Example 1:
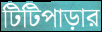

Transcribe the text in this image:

টিটিপাড়ার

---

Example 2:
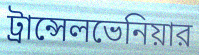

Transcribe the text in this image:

ট্রান্সেলভেনিয়ার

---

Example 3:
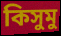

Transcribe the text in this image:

কিসুমু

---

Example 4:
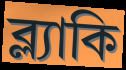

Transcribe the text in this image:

ব্ল্যাকি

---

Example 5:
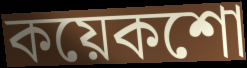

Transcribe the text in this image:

কয়েকশো